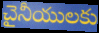
చైనీయులకు